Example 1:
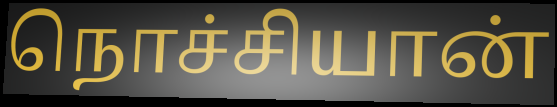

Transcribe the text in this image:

நொச்சியான்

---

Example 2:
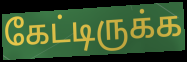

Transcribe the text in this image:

கேட்டிருக்க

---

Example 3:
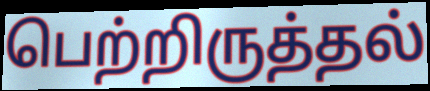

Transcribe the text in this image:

பெற்றிருத்தல்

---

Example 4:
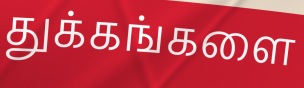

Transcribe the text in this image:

துக்கங்களை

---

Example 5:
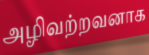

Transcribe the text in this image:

அழிவற்றவனாக